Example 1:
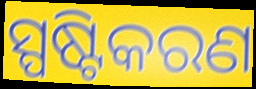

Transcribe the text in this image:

ସ୍ପଷ୍ଟିକରଣ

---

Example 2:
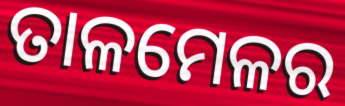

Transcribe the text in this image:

ତାଳମେଳର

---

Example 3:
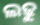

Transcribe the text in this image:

ଲଢୁ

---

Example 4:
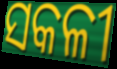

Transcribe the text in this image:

ସକଳୀ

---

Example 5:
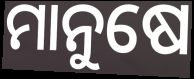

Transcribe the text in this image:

ମାନୁଷେ